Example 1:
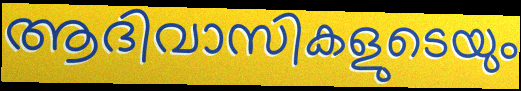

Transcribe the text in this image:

ആദിവാസികളുടെയും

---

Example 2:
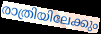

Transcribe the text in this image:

രാത്രിയിലേക്കും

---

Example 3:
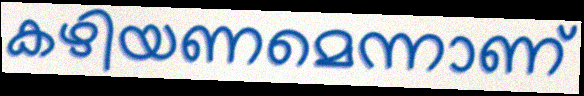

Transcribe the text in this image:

കഴിയണമെന്നാണ്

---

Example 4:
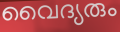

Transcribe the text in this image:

വൈദ്യരും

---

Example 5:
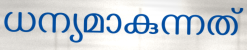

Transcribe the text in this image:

ധന്യമാകുന്നത്